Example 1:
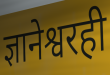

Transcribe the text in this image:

ज्ञानेश्वरही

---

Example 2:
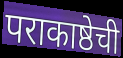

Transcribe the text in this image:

पराकाष्ठेची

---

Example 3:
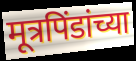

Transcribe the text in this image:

मूत्रपिंडांच्या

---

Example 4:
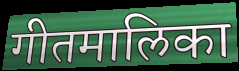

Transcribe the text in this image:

गीतमालिका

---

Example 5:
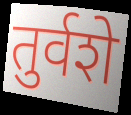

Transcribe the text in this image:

तुर्वशे